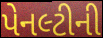
પેનલ્ટીની